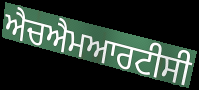
ਐਚਐਮਆਰਟੀਸੀ